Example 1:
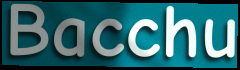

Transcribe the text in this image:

Bacchu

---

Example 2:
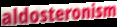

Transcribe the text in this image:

aldosteronism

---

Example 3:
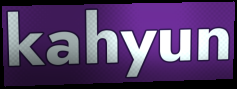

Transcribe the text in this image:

kahyun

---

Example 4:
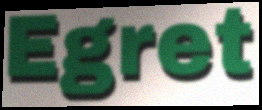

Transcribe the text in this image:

Egret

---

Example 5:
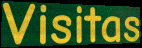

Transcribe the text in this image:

Visitas